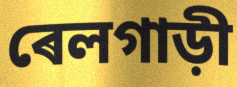
ৰেলগাড়ী